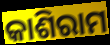
କାଶିରାମ